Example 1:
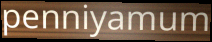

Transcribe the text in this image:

penniyamum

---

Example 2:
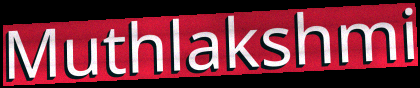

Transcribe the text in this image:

Muthlakshmi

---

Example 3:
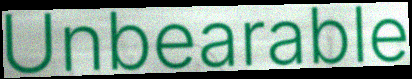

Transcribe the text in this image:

Unbearable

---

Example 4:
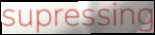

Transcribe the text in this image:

supressing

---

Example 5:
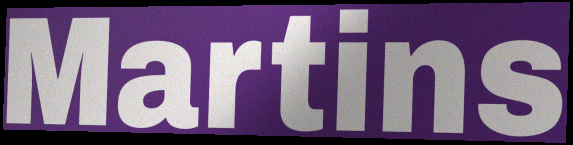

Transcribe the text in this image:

Martins